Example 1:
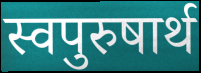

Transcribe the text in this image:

स्वपुरुषार्थ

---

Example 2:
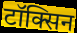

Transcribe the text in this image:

टॉक्सिन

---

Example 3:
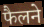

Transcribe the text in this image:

फैलने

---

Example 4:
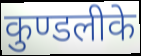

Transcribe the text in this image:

कुण्डलीके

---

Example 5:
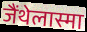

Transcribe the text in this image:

जैंथेलास्मा